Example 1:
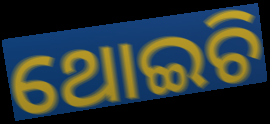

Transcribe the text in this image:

ଥୋଇଚି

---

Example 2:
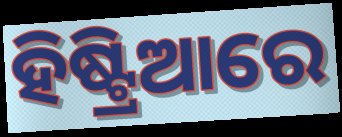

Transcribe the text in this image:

ହିଷ୍ଟ୍ରିଆରେ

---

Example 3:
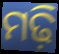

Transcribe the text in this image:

ମଢ଼ି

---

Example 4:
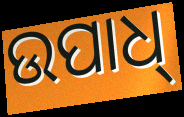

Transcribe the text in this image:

ଉପାଧ୍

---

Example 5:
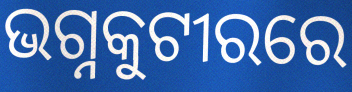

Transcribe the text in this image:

ଭଗ୍ନକୁଟୀରରେ